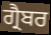
ਗ੍ਰੈਬਰ